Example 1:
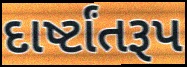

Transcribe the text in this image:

દાર્ષ્ટાંતરૂપ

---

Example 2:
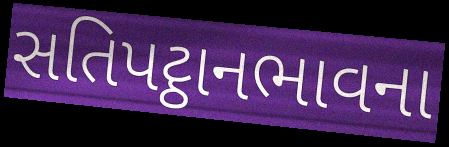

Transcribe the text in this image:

સતિપટ્ઠાનભાવના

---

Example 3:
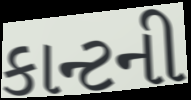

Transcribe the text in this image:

કાન્ટની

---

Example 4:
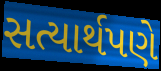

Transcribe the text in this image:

સત્યાર્થપણે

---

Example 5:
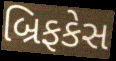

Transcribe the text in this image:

બ્રિફકેસ